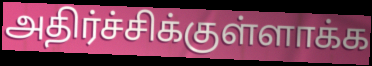
அதிர்ச்சிக்குள்ளாக்க